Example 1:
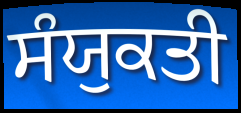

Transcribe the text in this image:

ਸੰਯੁਕਤੀ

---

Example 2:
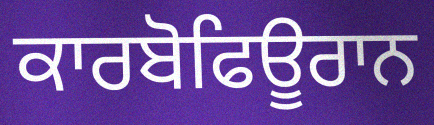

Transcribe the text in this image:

ਕਾਰਬੋਫਿਊਰਾਨ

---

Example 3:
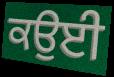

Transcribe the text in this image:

ਕਉਈ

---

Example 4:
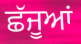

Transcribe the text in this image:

ਛੱਜੂਆਂ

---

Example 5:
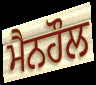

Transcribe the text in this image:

ਮੈਨਹੌਲ